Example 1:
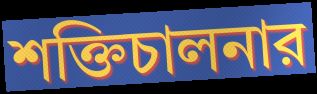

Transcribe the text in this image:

শক্তিচালনার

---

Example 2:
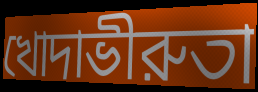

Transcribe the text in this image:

খোদাভীরুতা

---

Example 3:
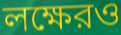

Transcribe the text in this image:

লক্ষেরও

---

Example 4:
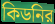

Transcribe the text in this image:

কিডনির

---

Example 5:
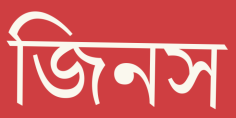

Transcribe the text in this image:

জিনস